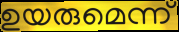
ഉയരുമെന്ന്